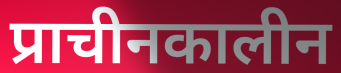
प्राचीनकालीन